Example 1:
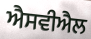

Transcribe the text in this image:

ਐਸਵੀਐਲ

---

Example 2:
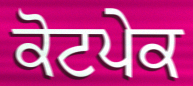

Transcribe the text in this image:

ਕੋਟਪੇਕ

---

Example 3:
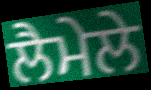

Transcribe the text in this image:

ਲੈਮੇਲੇ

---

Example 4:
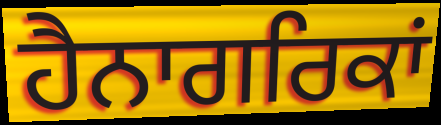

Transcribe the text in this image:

ਹੈਨਾਗਰਿਕਾਂ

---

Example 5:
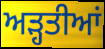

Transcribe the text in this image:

ਅੜ੍ਹਤੀਆਂ